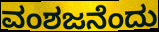
ವಂಶಜನೆಂದು